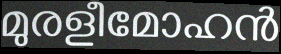
മുരളീമോഹൻ